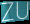
ZU